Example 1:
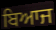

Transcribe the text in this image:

ਬਿਆਜ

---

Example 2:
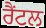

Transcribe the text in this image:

ਰੈਂਟਲ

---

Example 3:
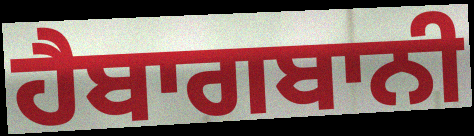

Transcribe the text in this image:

ਹੈਬਾਗਬਾਨੀ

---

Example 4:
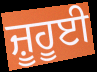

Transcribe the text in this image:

ਜ਼ੂਹੂਈ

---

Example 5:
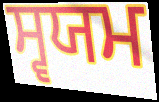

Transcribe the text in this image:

ਸ੍ਵਯਮ